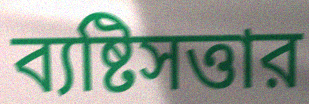
ব্যষ্টিসত্তার